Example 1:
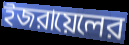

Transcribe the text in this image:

ইজরায়েলের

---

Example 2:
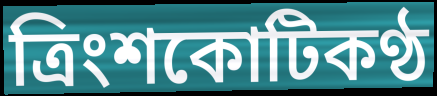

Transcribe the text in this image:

ত্রিংশকোটিকণ্ঠ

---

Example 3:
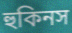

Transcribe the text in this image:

হুকিনস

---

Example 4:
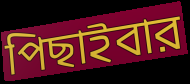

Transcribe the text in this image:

পিছাইবার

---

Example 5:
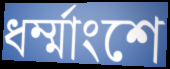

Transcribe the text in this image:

ধর্ম্মাংশে